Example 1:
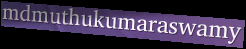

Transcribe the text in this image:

mdmuthukumaraswamy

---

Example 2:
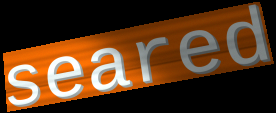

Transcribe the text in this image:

seared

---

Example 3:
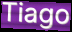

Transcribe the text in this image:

Tiago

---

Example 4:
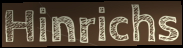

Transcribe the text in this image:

Hinrichs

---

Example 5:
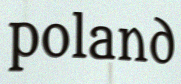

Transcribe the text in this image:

poland